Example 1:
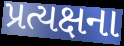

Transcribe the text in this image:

પ્રત્યક્ષના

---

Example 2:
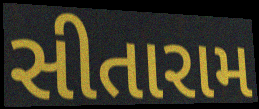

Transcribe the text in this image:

સીતારામ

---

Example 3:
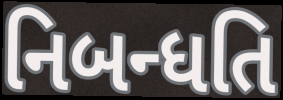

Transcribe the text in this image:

નિબન્ધતિ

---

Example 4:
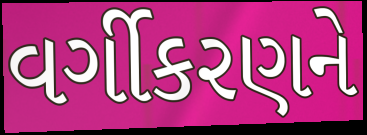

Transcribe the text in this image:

વર્ગીકરણને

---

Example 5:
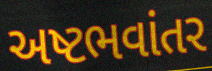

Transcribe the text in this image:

અષ્ટભવાંતર